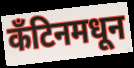
कँटिनमधून